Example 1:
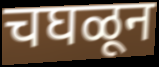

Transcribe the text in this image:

चघळून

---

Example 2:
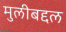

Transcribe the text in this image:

मुलीबद्दल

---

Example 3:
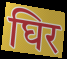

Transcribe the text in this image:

घिर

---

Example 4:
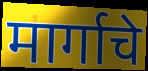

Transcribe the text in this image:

मार्गाचे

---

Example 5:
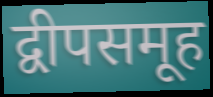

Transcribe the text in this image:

द्वीपसमूह